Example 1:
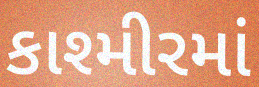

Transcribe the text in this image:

કાશ્મીરમાં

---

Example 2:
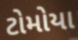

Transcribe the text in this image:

ટોમોયા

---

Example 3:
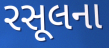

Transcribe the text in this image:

રસૂલના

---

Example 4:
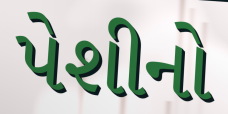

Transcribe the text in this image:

પેશીનો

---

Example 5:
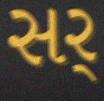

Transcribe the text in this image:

સર્